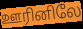
ஊரினிலே